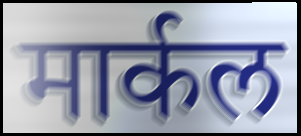
मार्कल